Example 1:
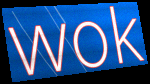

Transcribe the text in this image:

wok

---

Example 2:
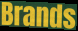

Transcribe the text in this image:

Brands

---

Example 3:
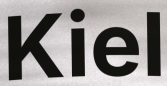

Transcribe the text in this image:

Kiel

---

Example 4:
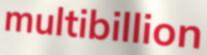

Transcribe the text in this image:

multibillion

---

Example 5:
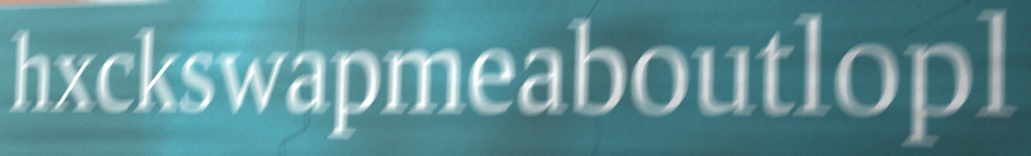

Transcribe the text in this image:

hxckswapmeaboutlopl